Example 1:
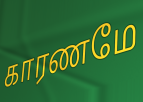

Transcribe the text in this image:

காரணமே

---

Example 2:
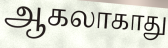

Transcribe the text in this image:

ஆகலாகாது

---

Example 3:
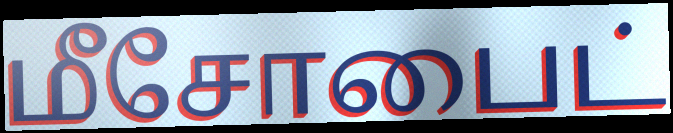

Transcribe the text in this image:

மீசோபைட்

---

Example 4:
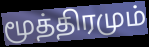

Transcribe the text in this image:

மூத்திரமும்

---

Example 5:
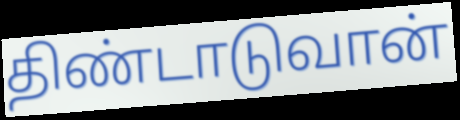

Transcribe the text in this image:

திண்டாடுவான்